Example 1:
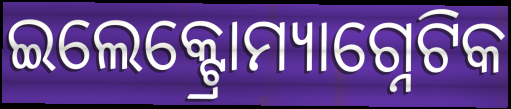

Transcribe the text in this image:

ଇଲେକ୍ଟ୍ରୋମ୍ୟାଗ୍ନେଟିକ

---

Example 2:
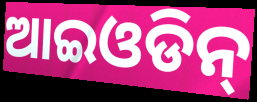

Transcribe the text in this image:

ଆଇଓଡିନ୍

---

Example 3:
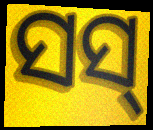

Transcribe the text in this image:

ସସ୍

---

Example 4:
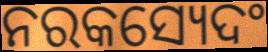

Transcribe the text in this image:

ନରକସ୍ୟେଦଂ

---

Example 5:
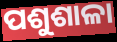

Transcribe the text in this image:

ପଶୁଶାଳା